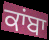
ਕਾਂਬਾ